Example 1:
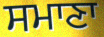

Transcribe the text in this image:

ਸਮਾਣਾ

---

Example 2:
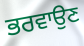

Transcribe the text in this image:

ਭਰਵਾਉਣ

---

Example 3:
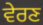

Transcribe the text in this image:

ਵੇਰਣ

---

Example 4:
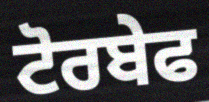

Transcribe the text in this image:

ਟੋਰਬੇਫ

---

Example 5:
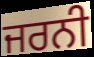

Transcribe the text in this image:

ਜਰਨੀ